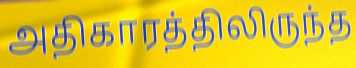
அதிகாரத்திலிருந்த